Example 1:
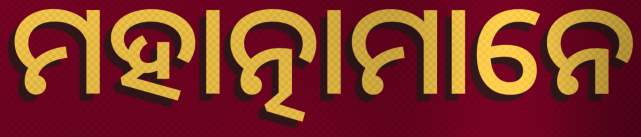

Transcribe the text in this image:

ମହାତ୍ନାମାନେ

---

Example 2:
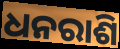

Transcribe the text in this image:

ଧନରାଶି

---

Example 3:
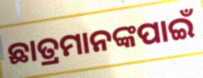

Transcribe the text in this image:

ଛାତ୍ରମାନଙ୍କପାଇଁ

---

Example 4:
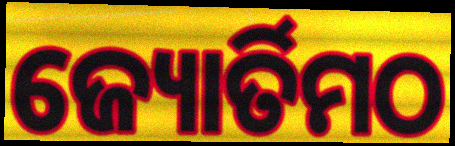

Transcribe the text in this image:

ଜ୍ୟୋର୍ତିମଠ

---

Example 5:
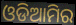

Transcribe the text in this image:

ଓଡିଆମିର